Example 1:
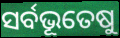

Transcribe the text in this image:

ସର୍ବଭୂତେଷୁ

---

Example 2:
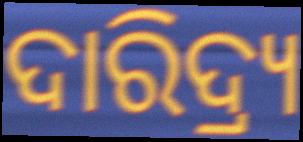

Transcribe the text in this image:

ଦାରିଦ୍ର୍ୟ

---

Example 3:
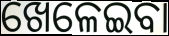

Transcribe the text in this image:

ଖେଳେଇବା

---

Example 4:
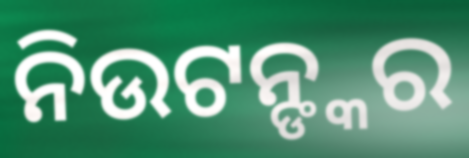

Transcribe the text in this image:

ନିଉଟନ୍ଙ୍କର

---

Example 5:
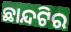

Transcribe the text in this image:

ଛାନ୍ଦଟିର